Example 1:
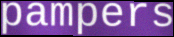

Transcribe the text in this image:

pampers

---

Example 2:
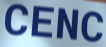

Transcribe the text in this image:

CENC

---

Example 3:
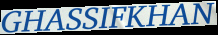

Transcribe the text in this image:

GHASSIFKHAN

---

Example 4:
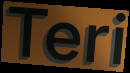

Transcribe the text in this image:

Teri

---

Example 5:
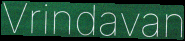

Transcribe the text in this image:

Vrindavan